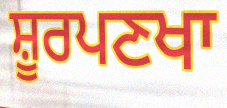
ਸ਼ੂਰਪਣਖਾ